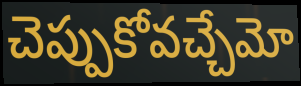
చెప్పుకోవచ్చేమో